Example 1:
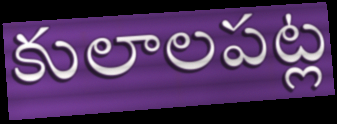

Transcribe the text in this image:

కులాలపట్ల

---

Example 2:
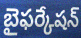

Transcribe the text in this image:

బైఫర్కేషన్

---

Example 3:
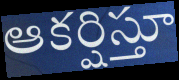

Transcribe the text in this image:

ఆకర్షిస్తూ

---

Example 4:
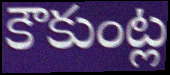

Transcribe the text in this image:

కౌకుంట్ల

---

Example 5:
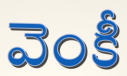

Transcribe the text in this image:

వెంకీ